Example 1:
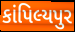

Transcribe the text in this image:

કાંપિલ્યપુર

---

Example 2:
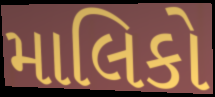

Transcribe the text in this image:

માલિકો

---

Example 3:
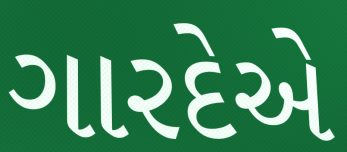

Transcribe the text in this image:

ગારદેએ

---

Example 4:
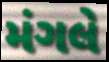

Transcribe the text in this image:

મંગલે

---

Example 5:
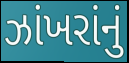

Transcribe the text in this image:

ઝાંખરાંનું